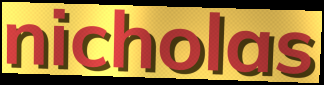
nicholas